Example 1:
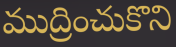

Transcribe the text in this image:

ముద్రించుకొని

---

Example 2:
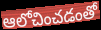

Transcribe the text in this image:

ఆలోచించడంతో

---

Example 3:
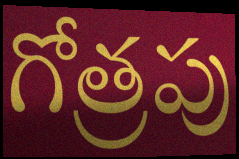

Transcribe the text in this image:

గోత్రపు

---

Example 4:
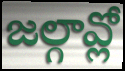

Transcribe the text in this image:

జల్గావ్లో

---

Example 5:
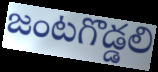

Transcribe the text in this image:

జంటగొడ్డలి